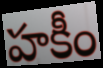
హకీం